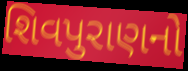
શિવપુરાણનો